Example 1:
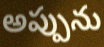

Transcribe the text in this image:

అప్పును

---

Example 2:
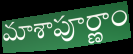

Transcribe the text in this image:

మాశాపూర్ణాం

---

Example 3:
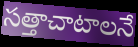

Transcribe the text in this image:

సత్తాచాటాలనే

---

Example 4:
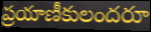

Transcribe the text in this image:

ప్రయాణీకులందరూ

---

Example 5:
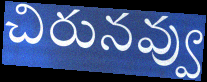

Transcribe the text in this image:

చిరునవ్వు